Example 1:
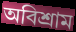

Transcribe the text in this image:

অবিশ্রাম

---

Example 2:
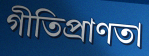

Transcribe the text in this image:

গীতিপ্রাণতা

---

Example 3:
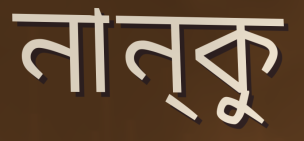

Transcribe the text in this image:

নান্‌কু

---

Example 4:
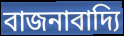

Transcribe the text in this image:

বাজনাবাদ্যি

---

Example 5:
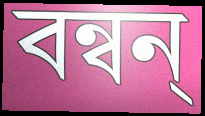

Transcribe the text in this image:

বন্বন্